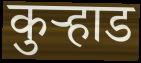
कुऱ्हाड